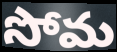
సోమ